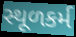
સ્થૂળકર્મ